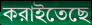
করাইতেছে